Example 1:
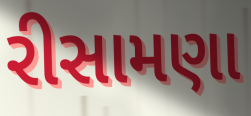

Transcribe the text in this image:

રીસામણા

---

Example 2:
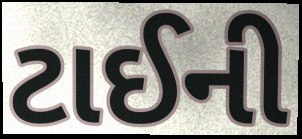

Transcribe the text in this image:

ટાઈની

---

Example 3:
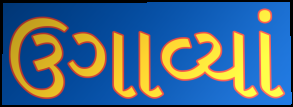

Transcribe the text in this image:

ઉગાવ્યાં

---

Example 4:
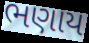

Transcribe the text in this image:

ભણાય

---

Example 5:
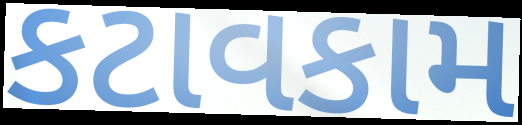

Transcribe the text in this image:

કટાવકામ